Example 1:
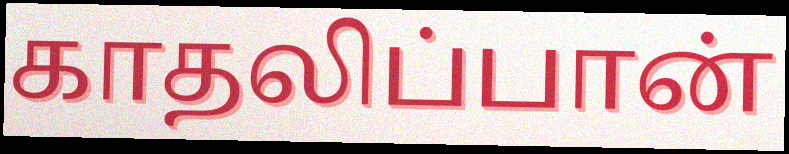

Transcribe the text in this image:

காதலிப்பான்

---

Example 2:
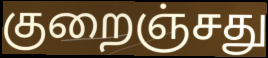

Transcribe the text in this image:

குறைஞ்சது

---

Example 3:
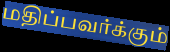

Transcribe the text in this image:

மதிப்பவர்க்கும்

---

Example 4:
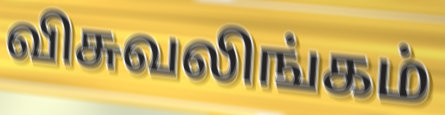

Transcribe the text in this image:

விசுவலிங்கம்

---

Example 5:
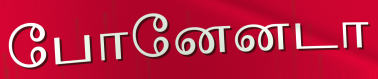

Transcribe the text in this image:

போனேனடா